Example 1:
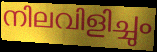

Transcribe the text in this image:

നിലവിളിച്ചും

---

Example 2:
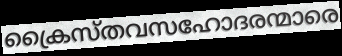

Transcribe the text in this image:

ക്രൈസ്തവസഹോദരന്മാരെ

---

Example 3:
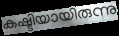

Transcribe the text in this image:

കഷ്ടിയായിരുന്നു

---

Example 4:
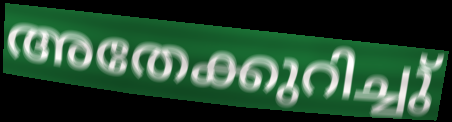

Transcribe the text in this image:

അതേക്കുറിച്ചു്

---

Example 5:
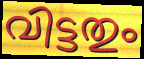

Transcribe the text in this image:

വിട്ടതും